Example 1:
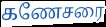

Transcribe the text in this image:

கணேசரை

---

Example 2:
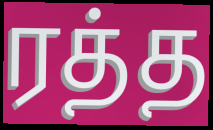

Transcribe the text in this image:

ரத்த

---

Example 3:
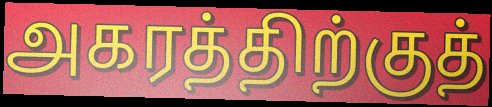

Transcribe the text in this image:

அகரத்திற்குத்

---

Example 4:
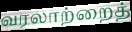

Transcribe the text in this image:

வரலாற்றைத்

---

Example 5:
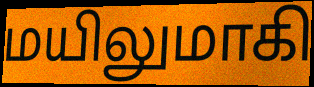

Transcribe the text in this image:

மயிலுமாகி